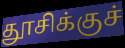
தூசிக்குச்